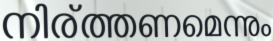
നിര്ത്തണമെന്നും